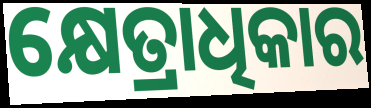
କ୍ଷେତ୍ରାଧିକାର